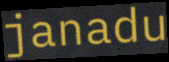
janadu